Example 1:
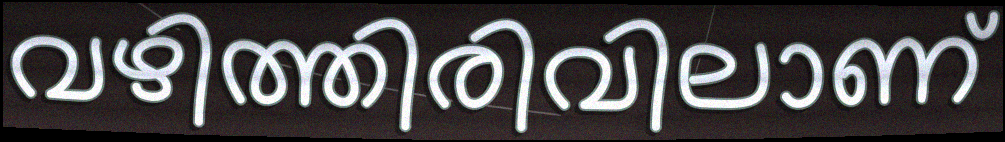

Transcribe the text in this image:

വഴിത്തിരിവിലാണ്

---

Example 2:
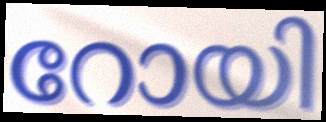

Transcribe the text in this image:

റോയി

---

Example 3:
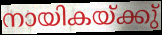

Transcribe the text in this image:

നായികയ്ക്കു്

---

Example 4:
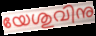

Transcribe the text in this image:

യേശുവിനു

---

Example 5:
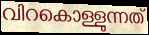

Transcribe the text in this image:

വിറകൊള്ളുന്നത്